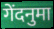
गेंदनुमा